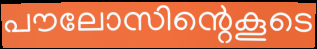
പൗലോസിന്റെകൂടെ